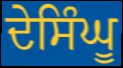
ਦੇਸਿੰਘੂ